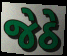
જેઠે